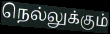
நெல்லுக்கும்